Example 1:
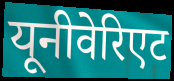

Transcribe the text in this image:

यूनीवेरिएट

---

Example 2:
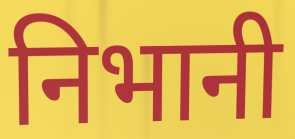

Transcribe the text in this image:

निभानी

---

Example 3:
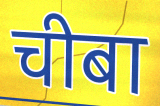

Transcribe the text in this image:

चीबा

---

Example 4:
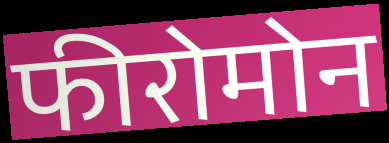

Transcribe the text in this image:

फीरोमोन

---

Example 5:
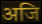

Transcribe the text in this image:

अजि